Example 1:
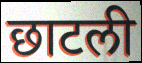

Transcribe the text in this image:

छाटली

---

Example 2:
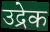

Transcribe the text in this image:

उद्रेक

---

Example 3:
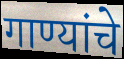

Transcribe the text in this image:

गाण्यांचे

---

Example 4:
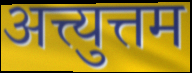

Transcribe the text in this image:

अत्त्युत्तम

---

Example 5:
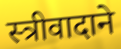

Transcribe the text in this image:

स्त्रीवादाने